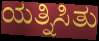
ಯತ್ನಿಸಿತು